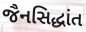
જૈનસિદ્ધાંત